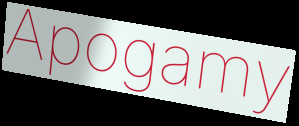
Apogamy